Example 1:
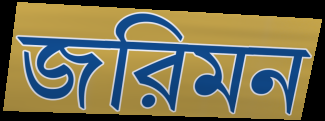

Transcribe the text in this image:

জরিমন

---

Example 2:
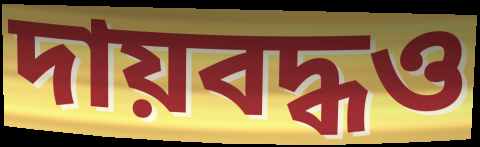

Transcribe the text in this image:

দায়বদ্ধও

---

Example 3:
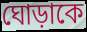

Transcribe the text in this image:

ঘোড়াকে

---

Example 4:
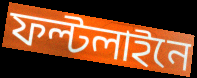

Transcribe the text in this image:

ফল্টলাইনে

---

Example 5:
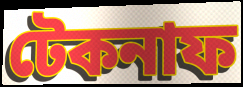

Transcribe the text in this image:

টেকনাফ